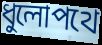
ধুলোপথে